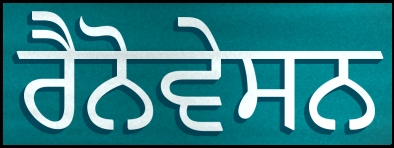
ਰੈਨੋਵੇਸਨ